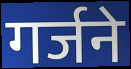
गर्जने